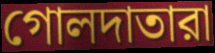
গোলদাতারা